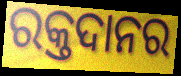
ରକ୍ତଦାନର